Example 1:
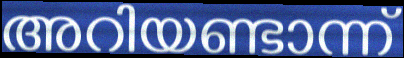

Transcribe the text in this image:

അറിയണ്ടാന്ന്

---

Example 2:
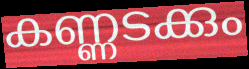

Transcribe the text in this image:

കണ്ണടക്കും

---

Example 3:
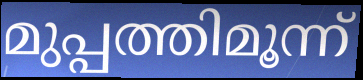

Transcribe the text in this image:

മുപ്പത്തിമൂന്ന്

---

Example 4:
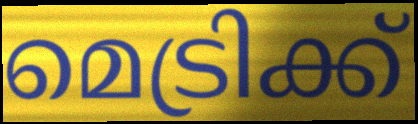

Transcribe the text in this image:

മെട്രിക്ക്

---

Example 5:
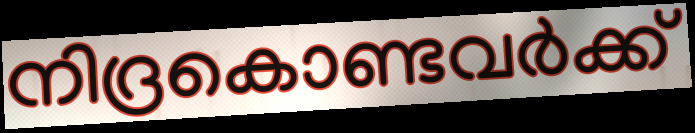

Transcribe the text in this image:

നിദ്രകൊണ്ടവർക്ക്